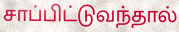
சாப்பிட்டுவந்தால்